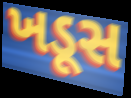
ખડૂસ